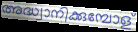
അദ്ധ്വാനിക്കുമ്പോള്